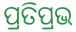
ପ୍ରତିପ୍ରଭ